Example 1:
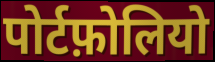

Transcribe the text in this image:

पोर्टफ़ोलियो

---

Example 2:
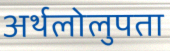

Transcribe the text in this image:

अर्थलोलुपता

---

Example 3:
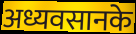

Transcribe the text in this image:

अध्यवसानके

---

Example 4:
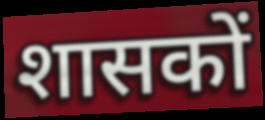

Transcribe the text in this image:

शासकों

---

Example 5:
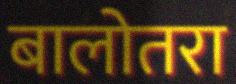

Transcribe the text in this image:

बालोतरा